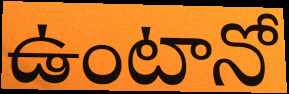
ఉంటానో